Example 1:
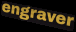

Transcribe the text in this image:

engraver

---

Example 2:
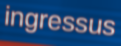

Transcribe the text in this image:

ingressus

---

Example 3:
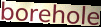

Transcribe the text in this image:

borehole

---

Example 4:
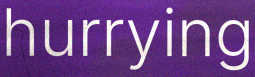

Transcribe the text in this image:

hurrying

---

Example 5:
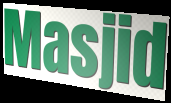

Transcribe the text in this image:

Masjid